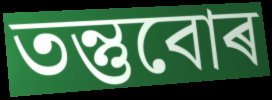
তন্তুবোৰ